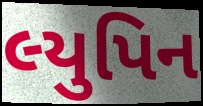
લ્યુપિન